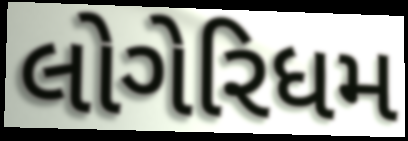
લોગેરિધમ